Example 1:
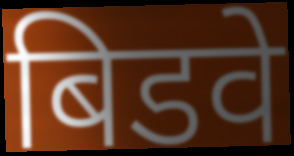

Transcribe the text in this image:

बिडवे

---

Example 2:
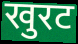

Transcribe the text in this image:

खुरट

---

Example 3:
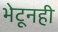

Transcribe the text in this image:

भेटूनही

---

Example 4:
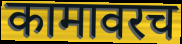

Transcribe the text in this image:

कामावरच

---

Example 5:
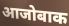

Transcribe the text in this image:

आजोबाक